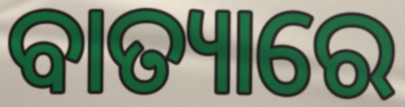
ବାତ୍ୟାରେ